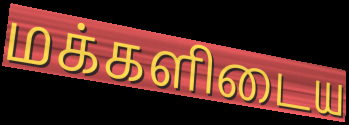
மக்களிடைய